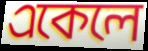
একেলে